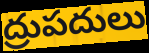
ద్రుపదులు